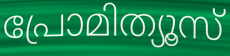
പ്രോമിത്യൂസ്